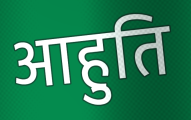
आहुति